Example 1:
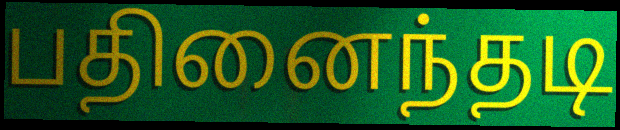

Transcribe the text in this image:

பதினைந்தடி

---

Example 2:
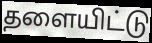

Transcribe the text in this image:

தளையிட்டு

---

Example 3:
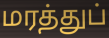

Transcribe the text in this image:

மரத்துப்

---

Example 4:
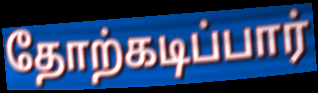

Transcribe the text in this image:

தோற்கடிப்பார்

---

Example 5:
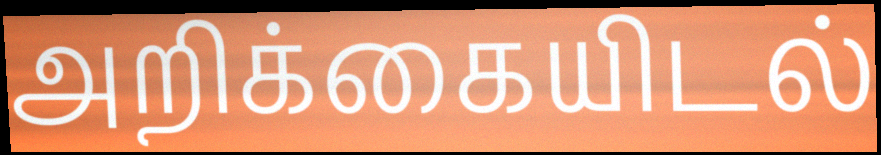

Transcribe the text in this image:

அறிக்கையிடல்